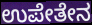
ಉಪೇತೇನ